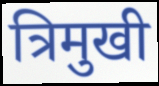
त्रिमुखी